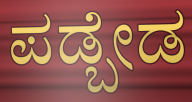
ಪಡ್ಬೇಡ